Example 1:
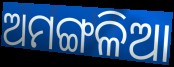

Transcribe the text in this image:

ଅମଙ୍ଗଳିଆ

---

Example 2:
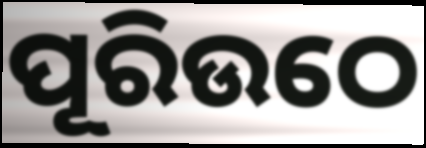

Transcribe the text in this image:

ପୂରିଉଠେ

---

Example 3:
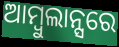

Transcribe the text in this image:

ଆମ୍ବୁଲାନ୍ସରେ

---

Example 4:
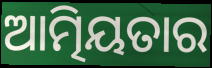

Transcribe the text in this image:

ଆତ୍ମିୟତାର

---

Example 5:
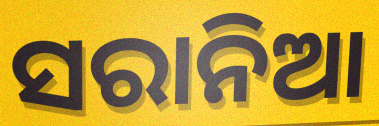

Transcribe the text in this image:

ସରାନିଆ